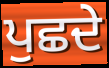
ਪੁਛਦੇ